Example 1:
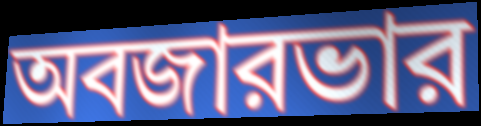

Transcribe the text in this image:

অবজারভার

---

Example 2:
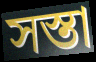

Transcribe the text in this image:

সস্তা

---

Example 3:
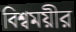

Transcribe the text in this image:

বিশ্বময়ীর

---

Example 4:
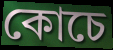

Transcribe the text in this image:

কোচে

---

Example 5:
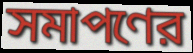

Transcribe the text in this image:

সমাপণের